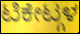
ಟಿಕೇಟ್ಗಳ